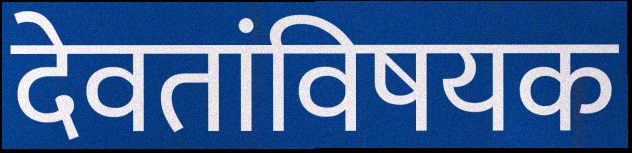
देवतांविषयक